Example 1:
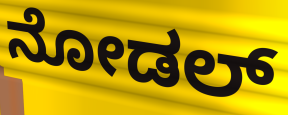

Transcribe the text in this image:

ನೋಡಲ್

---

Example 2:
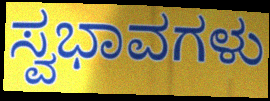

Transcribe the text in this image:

ಸ್ವಭಾವಗಳು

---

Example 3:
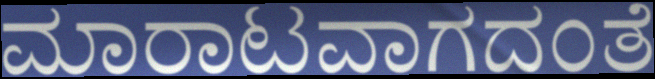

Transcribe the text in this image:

ಮಾರಾಟವಾಗದಂತೆ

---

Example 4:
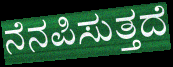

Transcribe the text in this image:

ನೆನಪಿಸುತ್ತದೆ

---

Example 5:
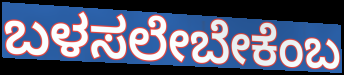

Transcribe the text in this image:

ಬಳಸಲೇಬೇಕೆಂಬ